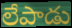
లేపాడు